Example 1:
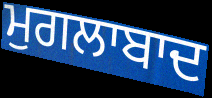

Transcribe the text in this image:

ਮੁਗਲਾਬਾਦ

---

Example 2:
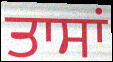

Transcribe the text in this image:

ਤਾਸਾਂ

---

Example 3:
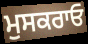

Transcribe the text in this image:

ਮੁਸਕਰਾਓ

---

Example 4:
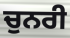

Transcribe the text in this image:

ਚੁਨਰੀ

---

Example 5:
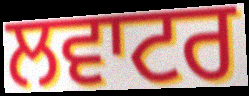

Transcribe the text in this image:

ਲਵਾਟਰ